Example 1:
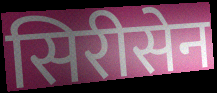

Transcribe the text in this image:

सिरीसेन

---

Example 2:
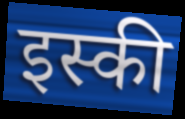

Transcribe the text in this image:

इस्की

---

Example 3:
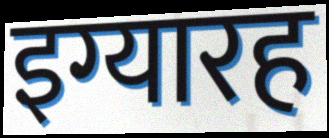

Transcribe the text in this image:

इग्यारह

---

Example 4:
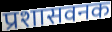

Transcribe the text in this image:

प्रशासवनक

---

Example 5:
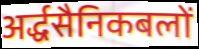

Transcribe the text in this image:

अर्द्धसैनिकबलों